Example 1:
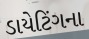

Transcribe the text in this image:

ડાયેટિંગના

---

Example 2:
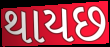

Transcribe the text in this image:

થાયછ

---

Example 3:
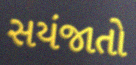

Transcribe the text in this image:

સયંજાતો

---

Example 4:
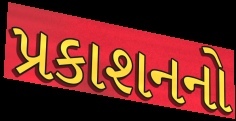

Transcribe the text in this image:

પ્રકાશનનો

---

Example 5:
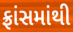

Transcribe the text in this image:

ફ્રાંસમાંથી